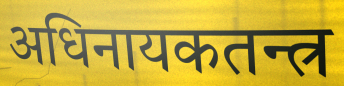
अधिनायकतन्त्र